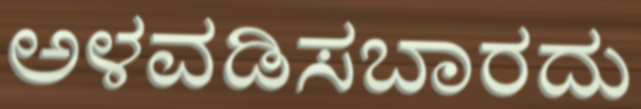
ಅಳವಡಿಸಬಾರದು